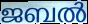
ജബൽ